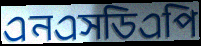
এনএসডিএপি